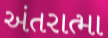
અંતરાત્મા